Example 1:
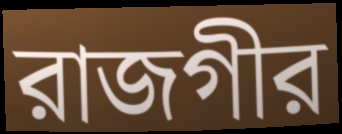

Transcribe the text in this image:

রাজগীর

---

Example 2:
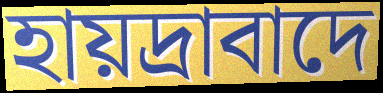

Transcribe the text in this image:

হায়দ্রাবাদে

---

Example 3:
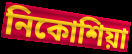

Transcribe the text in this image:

নিকোশিয়া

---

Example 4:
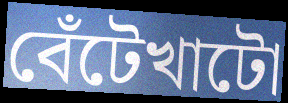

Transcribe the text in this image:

বেঁটেখাটো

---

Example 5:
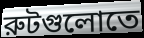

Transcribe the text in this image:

রুটগুলোতে